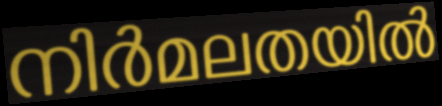
നിർമലതയിൽ